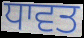
ਧਾਵਤ